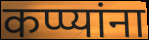
कप्प्यांना